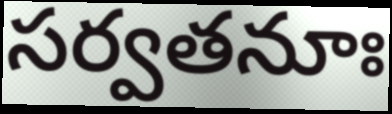
సర్వతనూః